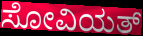
ಸೋವಿಯತ್